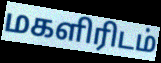
மகளிரிடம்